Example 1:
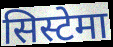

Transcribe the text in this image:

सिस्टेमा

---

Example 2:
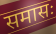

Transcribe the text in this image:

समासः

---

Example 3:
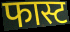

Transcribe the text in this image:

फास्ट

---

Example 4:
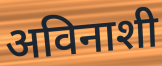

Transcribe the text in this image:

अविनाशी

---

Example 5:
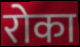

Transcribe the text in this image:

रोका